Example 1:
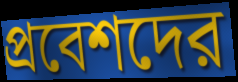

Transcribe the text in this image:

প্রবেশদের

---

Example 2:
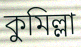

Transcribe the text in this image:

কুমিল্লা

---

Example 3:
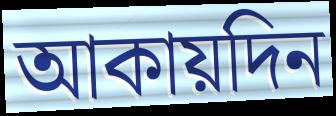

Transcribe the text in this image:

আকায়দিন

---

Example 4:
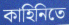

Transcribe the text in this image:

কাহিনিতে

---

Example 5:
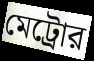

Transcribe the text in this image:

মেট্রোর